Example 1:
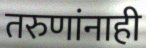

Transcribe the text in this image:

तरुणांनाही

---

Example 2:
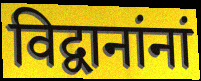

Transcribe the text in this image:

विद्वानांनां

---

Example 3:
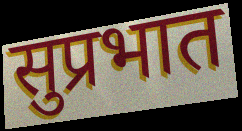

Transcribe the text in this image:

सुप्रभात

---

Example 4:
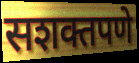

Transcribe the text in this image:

सशक्तपणे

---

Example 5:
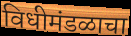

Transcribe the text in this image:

विधीमंडळाचा